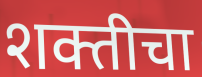
शक्‍तीचा